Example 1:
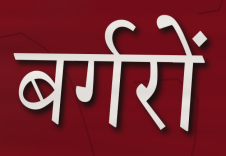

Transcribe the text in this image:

बर्गरों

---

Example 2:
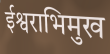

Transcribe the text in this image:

ईश्वराभिमुख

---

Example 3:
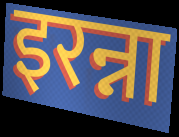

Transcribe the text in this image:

इरन्ना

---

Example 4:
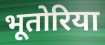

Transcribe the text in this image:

भूतोरिया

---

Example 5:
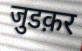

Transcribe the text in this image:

जुडक़र